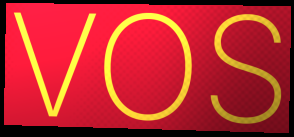
VOS